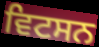
ਵਿਟਸਨ